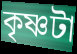
কৃষ্ণটা